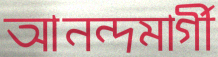
আনন্দমার্গী